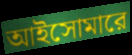
আইসোমারে